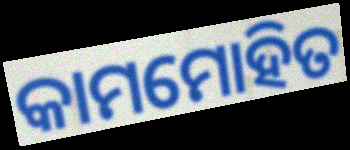
କାମମୋହିତ